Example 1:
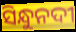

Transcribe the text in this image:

ସିନ୍ଧୁନଦୀ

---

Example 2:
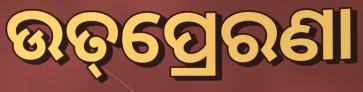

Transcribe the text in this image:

ଉତ୍‌ପ୍ରେରଣା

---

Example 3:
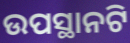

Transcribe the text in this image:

ଉପସ୍ଥାନଟି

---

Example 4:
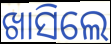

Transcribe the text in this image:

ଖାସିଲେ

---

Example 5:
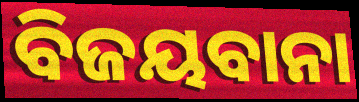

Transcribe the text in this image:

ବିଜୟବାନା